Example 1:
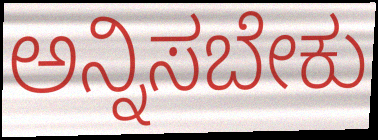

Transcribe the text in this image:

ಅನ್ನಿಸಬೇಕು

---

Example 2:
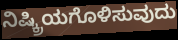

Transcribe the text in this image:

ನಿಷ್ಕ್ರಿಯಗೊಳಿಸುವುದು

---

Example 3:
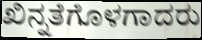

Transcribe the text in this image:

ಖಿನ್ನತೆಗೊಳಗಾದರು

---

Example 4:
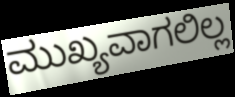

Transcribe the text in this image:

ಮುಖ್ಯವಾಗಲಿಲ್ಲ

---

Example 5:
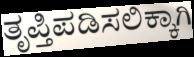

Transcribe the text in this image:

ತೃಪ್ತಿಪಡಿಸಲಿಕ್ಕಾಗಿ